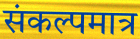
संकल्पमात्र